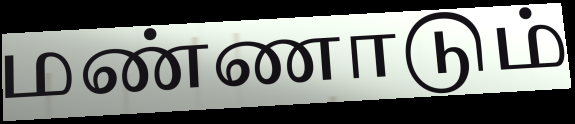
மண்ணாடும்